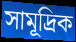
সামূদ্ৰিক